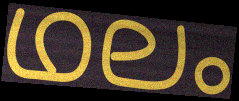
ഥലം